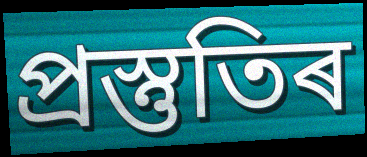
প্ৰস্তুতিৰ